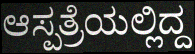
ಆಸ್ಪತ್ರೆಯಲ್ಲಿದ್ದ